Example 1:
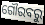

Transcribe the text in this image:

ଗୌରବରୁ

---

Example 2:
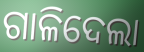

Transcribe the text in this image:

ଗାଳିଦେଲା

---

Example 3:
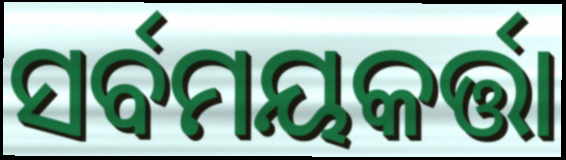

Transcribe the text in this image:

ସର୍ବମୟକର୍ତ୍ତା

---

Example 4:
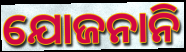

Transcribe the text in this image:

ଯୋଜନାନି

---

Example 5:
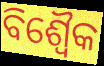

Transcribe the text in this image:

ବିଶ୍ୱୈକ